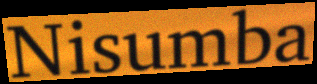
Nisumba